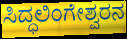
ಸಿದ್ಧಲಿಂಗೇಶ್ವರನ